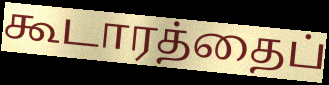
கூடாரத்தைப்